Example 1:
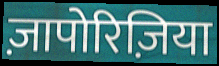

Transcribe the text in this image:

ज़ापोरिज़िया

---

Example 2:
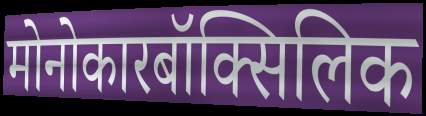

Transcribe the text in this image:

मोनोकारबॉक्सिलिक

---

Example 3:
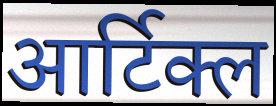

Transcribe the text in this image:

आर्टिक्ल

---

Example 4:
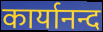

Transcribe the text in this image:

कार्यानन्द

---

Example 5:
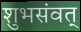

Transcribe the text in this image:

शुभसंवत्